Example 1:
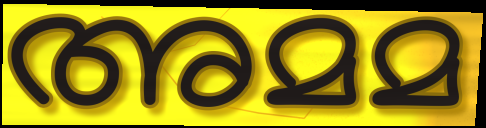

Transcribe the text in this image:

അമമ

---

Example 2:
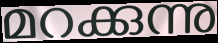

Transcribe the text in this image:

മറക്കുന്നു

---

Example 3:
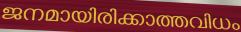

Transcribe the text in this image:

ജനമായിരിക്കാത്തവിധം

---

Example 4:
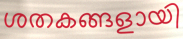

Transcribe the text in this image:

ശതകങ്ങളായി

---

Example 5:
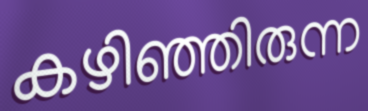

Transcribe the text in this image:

കഴിഞ്ഞിരുന്ന